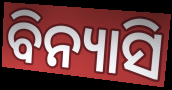
ବିନ୍ୟାସି